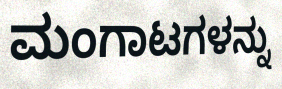
ಮಂಗಾಟಗಳನ್ನು